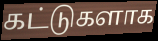
கட்டுகளாக